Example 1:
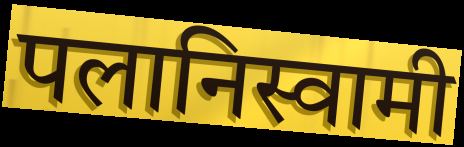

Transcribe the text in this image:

पलानिस्वामी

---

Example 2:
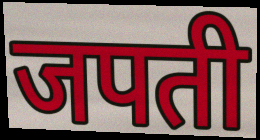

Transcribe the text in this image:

जपती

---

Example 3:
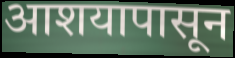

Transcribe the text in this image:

आशयापासून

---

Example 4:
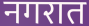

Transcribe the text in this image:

नगरात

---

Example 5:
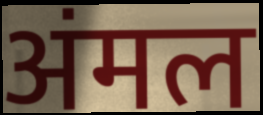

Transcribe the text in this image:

अंमल